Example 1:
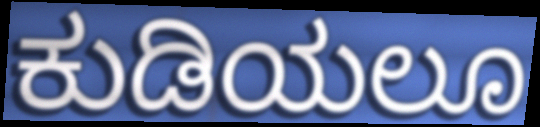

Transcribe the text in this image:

ಕುಡಿಯಲೂ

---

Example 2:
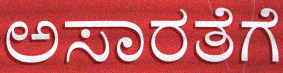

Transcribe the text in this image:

ಅಸಾರತೆಗೆ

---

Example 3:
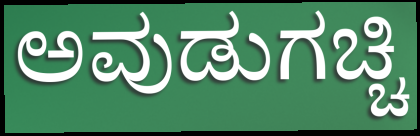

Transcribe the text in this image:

ಅವುಡುಗಚ್ಚಿ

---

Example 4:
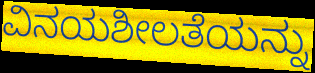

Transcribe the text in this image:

ವಿನಯಶೀಲತೆಯನ್ನು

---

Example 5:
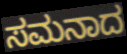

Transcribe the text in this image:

ಸಮನಾದ